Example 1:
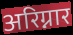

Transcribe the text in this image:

अरिग्नार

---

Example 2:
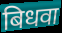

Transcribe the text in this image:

बिधवा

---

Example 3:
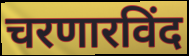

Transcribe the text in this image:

चरणारविंद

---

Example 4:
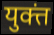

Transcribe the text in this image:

युक्तं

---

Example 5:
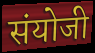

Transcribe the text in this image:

संयोजी